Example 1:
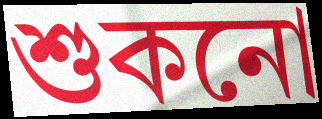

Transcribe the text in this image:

শুকনো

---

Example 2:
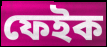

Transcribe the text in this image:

ফেইক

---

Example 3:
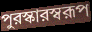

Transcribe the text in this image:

পুরস্কারস্বরূপ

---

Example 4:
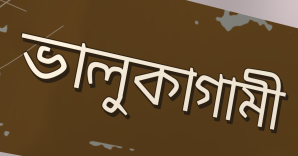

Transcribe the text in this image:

ভালুকাগামী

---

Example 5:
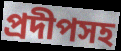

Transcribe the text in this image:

প্রদীপসহ